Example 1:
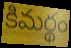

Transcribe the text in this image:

కిమర్థం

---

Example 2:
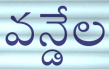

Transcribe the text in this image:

వన్డేల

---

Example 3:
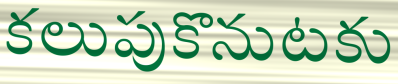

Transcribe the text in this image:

కలుపుకొనుటకు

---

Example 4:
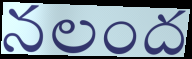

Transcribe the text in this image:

నలంద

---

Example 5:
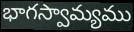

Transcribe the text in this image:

భాగస్వామ్యము